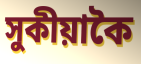
সুকীয়াকৈ